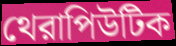
থেরাপিউটিক